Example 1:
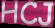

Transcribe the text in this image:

HCJ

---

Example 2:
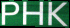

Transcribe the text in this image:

PHK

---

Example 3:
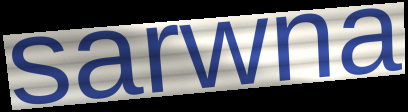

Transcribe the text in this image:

sarwna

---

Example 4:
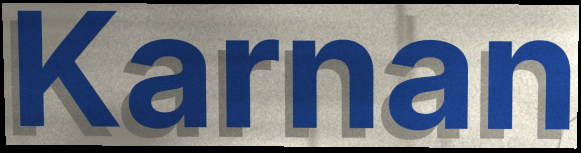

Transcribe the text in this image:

Karnan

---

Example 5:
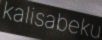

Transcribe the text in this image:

kalisabeku